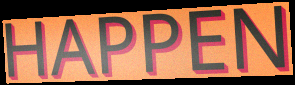
HAPPEN